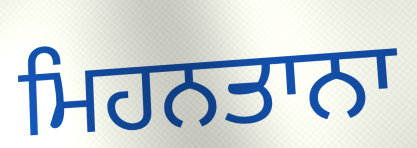
ਮਿਹਨਤਾਨਾ